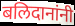
बलिदानांनी